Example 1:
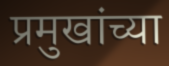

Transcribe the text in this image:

प्रमुखांच्या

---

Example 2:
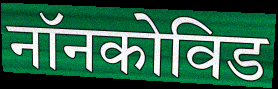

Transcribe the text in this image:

नॉनकोविड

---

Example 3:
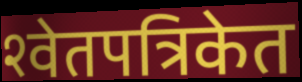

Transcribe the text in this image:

श्वेतपत्रिकेत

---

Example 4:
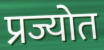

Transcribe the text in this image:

प्रज्योत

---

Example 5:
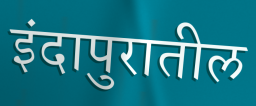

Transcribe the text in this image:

इंदापुरातील